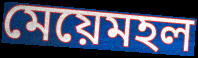
মেয়েমহল